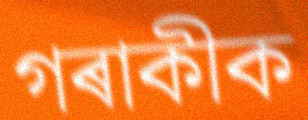
গৰাকীক